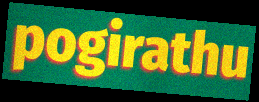
pogirathu